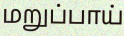
மறுப்பாய்